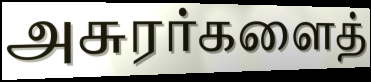
அசுரர்களைத்